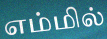
எம்மில்